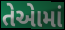
તેએામાં